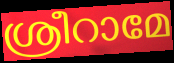
ശ്രീറാമേ